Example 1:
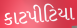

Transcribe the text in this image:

કાટપીટિયા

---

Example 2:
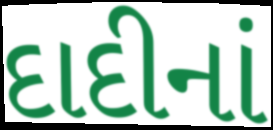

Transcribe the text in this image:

દાદીનાં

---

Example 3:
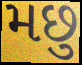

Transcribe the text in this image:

મછુ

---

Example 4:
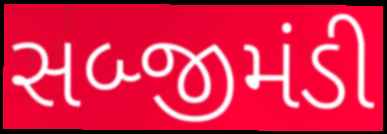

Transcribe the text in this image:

સબ્જીમંડી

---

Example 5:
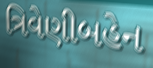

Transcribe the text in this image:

ત્રિવેણીબહેન